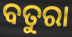
ବତୁରା